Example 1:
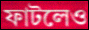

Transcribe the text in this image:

ফাটলেও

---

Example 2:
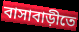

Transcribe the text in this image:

বাসাবাড়ীতে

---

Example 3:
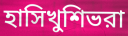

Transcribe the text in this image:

হাসিখুশিভরা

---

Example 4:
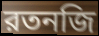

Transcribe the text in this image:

রতনজি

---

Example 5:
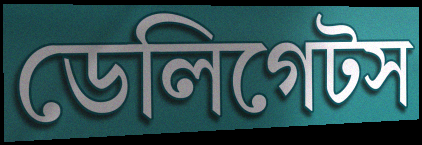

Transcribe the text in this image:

ডেলিগেটস